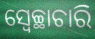
ସ୍ଵେଚ୍ଛାଚାରି